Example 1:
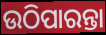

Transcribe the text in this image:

ଉଠିପାରନ୍ତା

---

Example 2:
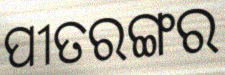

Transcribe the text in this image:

ପୀତରଙ୍ଗର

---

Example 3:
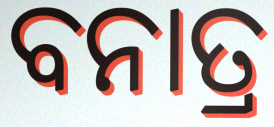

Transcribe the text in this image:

ବନାତ୍ର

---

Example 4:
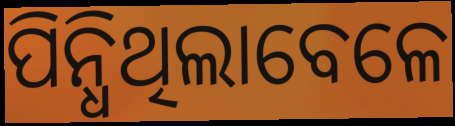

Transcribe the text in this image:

ପିନ୍ଧିଥିଲାବେଳେ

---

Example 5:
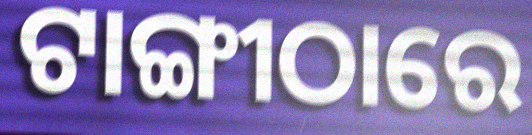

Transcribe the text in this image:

ଟାଙ୍ଗୀଠାରେ